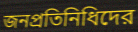
জনপ্রতিনিধিদের